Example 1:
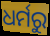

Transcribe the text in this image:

ଧର୍ମରୁ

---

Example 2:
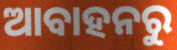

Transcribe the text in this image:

ଆବାହନରୁ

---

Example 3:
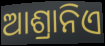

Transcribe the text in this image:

ଆଶ୍ରାନିଏ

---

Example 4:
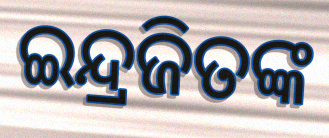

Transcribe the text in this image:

ଇନ୍ଦ୍ରଜିତଙ୍କ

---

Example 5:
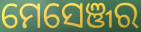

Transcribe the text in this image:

ମେସେଞ୍ଜର